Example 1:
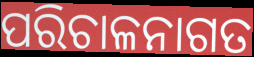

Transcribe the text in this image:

ପରିଚାଳନାଗତ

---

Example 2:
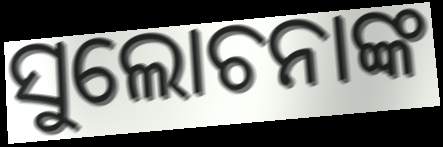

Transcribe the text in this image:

ସୁଲୋଚନାଙ୍କ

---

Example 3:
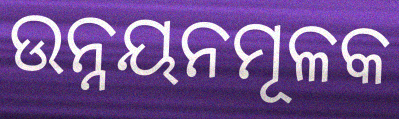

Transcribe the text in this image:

ଉନ୍ନୟନମୂଳକ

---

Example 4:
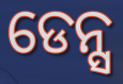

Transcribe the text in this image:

ଡେନ୍ସ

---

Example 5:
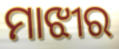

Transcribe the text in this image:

ମାଝୀର